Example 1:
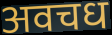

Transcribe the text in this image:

अवचध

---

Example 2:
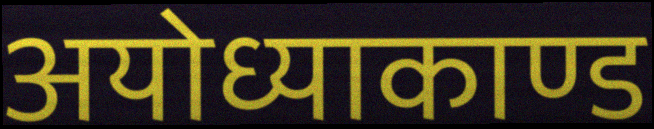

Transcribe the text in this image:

अयोध्याकाण्ड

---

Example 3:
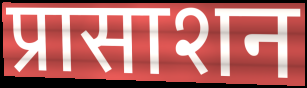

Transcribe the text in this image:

प्रासाशन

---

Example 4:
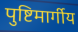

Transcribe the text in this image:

पुष्टिमार्गीय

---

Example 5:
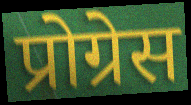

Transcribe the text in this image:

प्रोग्रेस